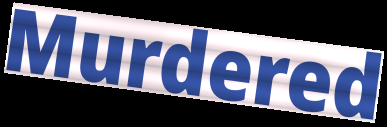
Murdered